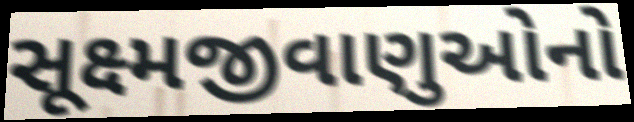
સૂક્ષ્મજીવાણુઓનો